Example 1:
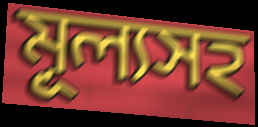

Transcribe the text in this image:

মূল্যসহ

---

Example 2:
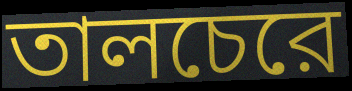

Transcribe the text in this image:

তালচেরে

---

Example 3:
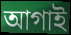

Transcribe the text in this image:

আগাই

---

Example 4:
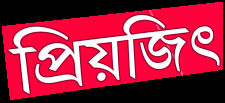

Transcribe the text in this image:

প্রিয়জিৎ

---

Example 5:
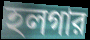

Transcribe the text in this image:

হলগার